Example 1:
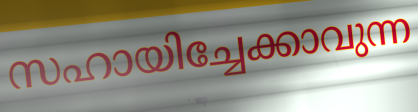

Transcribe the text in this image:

സഹായിച്ചേക്കാവുന്ന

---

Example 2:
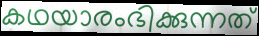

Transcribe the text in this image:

കഥയാരംഭിക്കുന്നത്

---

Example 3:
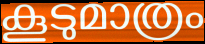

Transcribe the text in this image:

കൂടുമാത്രം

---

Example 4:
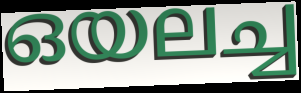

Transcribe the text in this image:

ഒയലച്ച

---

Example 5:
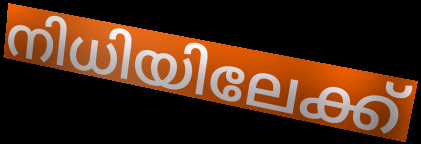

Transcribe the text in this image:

നിധിയിലേക്ക്